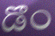
డొం